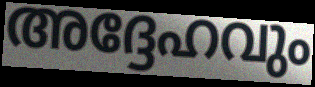
അദ്ദേഹവും